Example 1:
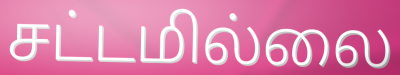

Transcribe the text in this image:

சட்டமில்லை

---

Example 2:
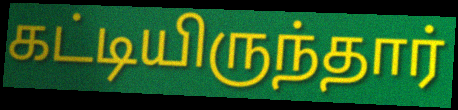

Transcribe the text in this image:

கட்டியிருந்தார்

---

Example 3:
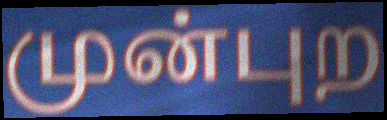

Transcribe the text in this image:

முன்புற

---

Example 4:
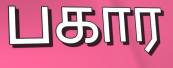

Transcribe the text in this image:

பகார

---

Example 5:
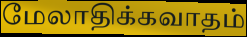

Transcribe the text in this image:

மேலாதிக்கவாதம்